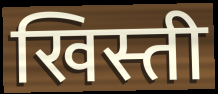
खिस्ती